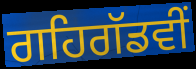
ਗਹਿਗੱਡਵੀਂ